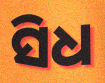
ସିଧ